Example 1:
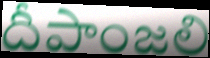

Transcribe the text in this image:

దీపాంజలి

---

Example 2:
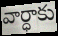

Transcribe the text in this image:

వార్ధాకు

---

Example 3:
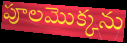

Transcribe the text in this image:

పూలమొక్కను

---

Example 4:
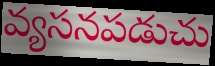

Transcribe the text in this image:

వ్యసనపడుచు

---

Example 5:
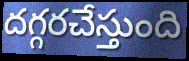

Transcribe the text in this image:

దగ్గరచేస్తుంది